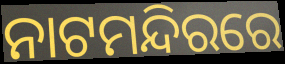
ନାଟମନ୍ଦିରରେ